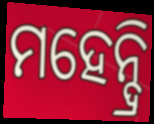
ମହେନ୍ଦ୍ରି